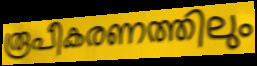
രൂപീകരണത്തിലും